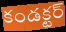
కండక్టర్